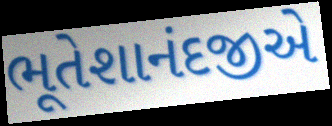
ભૂતેશાનંદજીએ